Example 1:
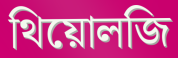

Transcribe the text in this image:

থিয়োলজি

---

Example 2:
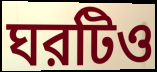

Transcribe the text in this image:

ঘরটিও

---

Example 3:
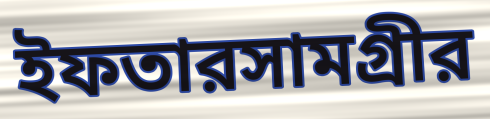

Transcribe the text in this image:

ইফতারসামগ্রীর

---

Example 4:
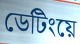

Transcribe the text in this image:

ডেটিংয়ে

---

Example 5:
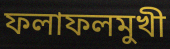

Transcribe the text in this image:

ফলাফলমুখী